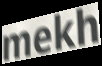
mekh